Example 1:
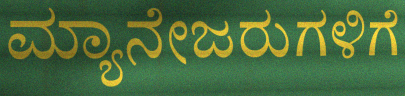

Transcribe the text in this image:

ಮ್ಯಾನೇಜರುಗಳಿಗೆ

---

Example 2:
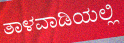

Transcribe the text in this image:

ತಾಳವಾಡಿಯಲ್ಲಿ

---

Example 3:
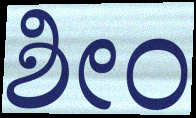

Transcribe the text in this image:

ಶೀಂ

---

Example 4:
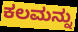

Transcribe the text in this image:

ಕಲಮನ್ನು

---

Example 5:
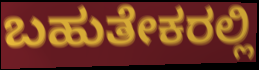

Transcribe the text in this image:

ಬಹುತೇಕರಲ್ಲಿ